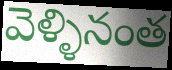
వెళ్ళినంత